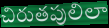
చిరుతపులిలా